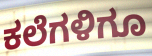
ಕಲೆಗಳಿಗೂ